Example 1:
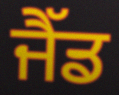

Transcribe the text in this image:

ਜੈੱਡ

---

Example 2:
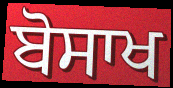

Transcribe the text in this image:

ਬੋਸਾਖ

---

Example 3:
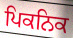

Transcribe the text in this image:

ਪਿਕਨਿਕ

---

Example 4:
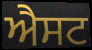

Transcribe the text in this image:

ਐਸਟ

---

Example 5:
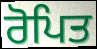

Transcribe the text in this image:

ਰੋਪਿਤ